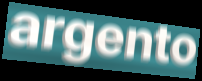
argento